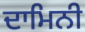
ਦਾਮਿਨੀ